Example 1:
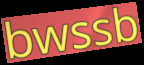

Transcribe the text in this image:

bwssb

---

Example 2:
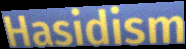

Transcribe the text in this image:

Hasidism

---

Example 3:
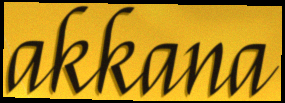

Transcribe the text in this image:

akkana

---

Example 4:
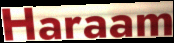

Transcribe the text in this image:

Haraam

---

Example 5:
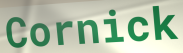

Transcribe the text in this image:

Cornick